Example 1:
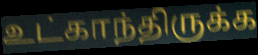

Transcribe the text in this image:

உட்காந்திருக்க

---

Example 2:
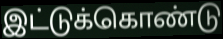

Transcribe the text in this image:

இட்டுக்கொண்டு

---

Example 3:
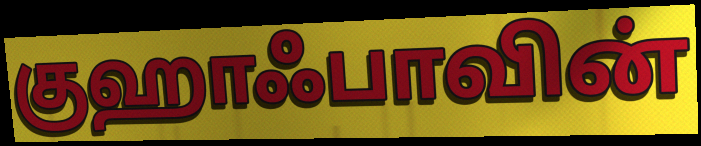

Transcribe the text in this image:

குஹாஃபாவின்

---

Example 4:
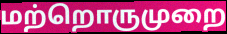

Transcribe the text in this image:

மற்றொருமுறை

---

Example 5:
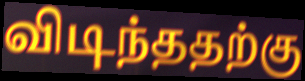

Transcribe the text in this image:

விடிந்ததற்கு